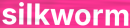
silkworm